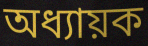
অধ্যায়ক